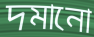
দমানো